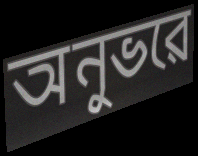
অনুভৱে